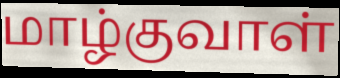
மாழ்குவாள்